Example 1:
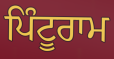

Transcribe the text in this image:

ਪਿੰਟੂਰਾਮ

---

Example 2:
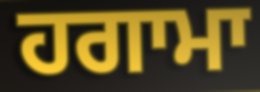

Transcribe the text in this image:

ਹਗਾਮਾ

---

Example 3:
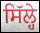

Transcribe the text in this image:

ਸਿੱਲ੍ਹੇ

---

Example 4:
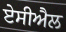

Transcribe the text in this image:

ਏਸੀਐਲ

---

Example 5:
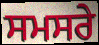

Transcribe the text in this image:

ਸਮਸਰੇ